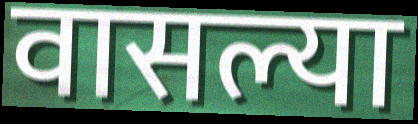
वासल्या